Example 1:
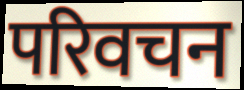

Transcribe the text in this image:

परिवचन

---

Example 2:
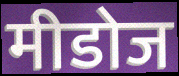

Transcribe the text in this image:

मीडोज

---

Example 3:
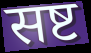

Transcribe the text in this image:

सष्ट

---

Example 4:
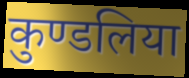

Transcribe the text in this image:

कुण्डलिया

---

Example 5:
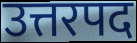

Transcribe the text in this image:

उत्तरपद